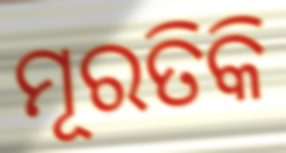
ମୂରତିକି